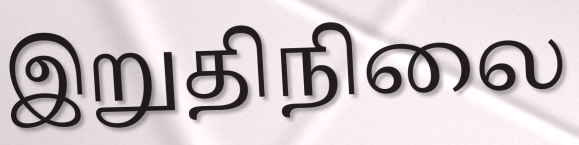
இறுதிநிலை